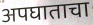
अपघाताचा